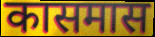
कासमास